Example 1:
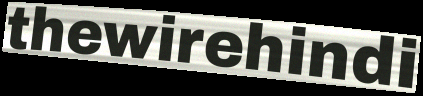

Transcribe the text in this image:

thewirehindi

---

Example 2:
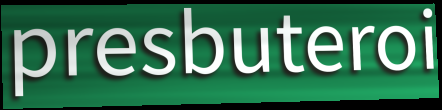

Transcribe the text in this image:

presbuteroi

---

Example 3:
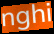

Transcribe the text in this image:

nghi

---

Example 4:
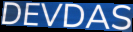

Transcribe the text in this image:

DEVDAS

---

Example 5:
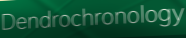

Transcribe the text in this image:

Dendrochronology